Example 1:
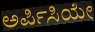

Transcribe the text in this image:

ಅರ್ಪಿಸಿಯೇ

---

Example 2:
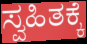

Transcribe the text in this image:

ಸ್ವಹಿತಕ್ಕೆ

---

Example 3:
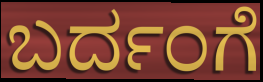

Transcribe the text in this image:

ಬರ್ದಂಗೆ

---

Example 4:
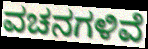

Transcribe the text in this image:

ವಚನಗಳಿವೆ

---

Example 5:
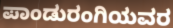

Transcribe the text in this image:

ಪಾಂಡುರಂಗಿಯವರ